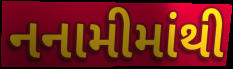
નનામીમાંથી